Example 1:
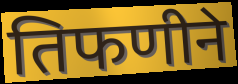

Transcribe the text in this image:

तिफणीने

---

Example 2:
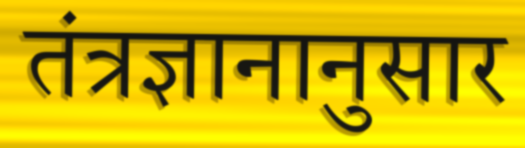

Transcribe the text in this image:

तंत्रज्ञानानुसार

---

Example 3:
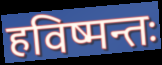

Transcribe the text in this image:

हविष्मन्तः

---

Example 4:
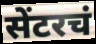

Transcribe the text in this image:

सेंटरचं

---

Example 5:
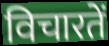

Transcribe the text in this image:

विचारतें